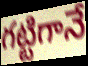
గట్టిగానే